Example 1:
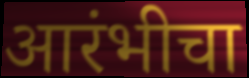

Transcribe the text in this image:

आरंभीचा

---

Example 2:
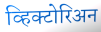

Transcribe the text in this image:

व्हिक्टोरिअन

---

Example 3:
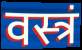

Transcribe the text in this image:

वस्त्रं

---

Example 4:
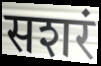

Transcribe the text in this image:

सशरं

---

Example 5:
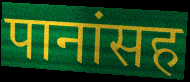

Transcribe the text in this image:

पानांसह